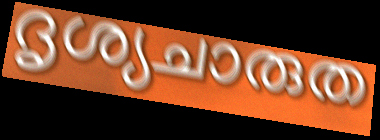
ദൃശ്യചാരുത